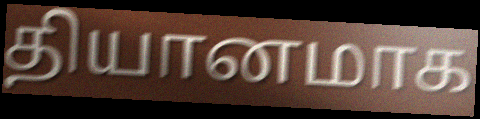
தியானமாக